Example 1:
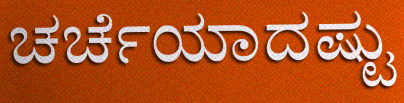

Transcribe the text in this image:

ಚರ್ಚೆಯಾದಷ್ಟು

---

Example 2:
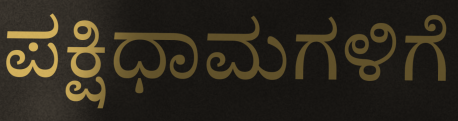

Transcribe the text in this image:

ಪಕ್ಷಿಧಾಮಗಳಿಗೆ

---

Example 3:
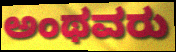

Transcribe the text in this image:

ಅಂಥವರು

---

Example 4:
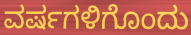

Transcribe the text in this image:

ವರ್ಷಗಳಿಗೊಂದು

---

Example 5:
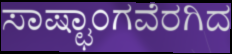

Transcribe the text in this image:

ಸಾಷ್ಟಾಂಗವೆರಗಿದ